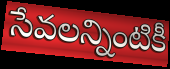
సేవలన్నింటికీ